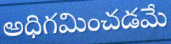
అధిగమించడమే